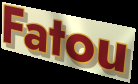
Fatou